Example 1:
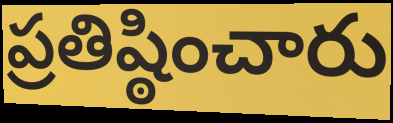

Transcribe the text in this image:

ప్రతిష్ఠించారు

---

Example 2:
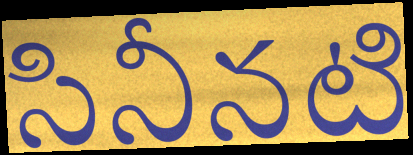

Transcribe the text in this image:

సినీనటి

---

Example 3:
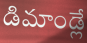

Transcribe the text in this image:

డిమాండ్లే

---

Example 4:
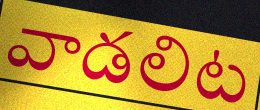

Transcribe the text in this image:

వాడలిట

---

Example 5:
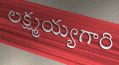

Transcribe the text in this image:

లక్ష్మయ్యగారి